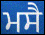
ਮਸੈ